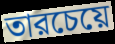
তারচেয়ে